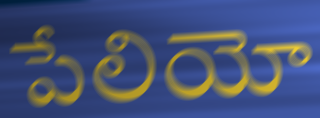
పేలియో